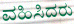
ವಹಿಸಿದರು